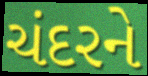
ચંદરને